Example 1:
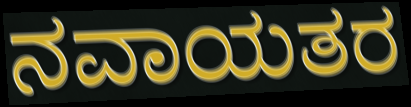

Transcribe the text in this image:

ನವಾಯತರ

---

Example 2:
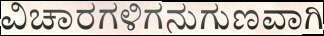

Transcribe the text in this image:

ವಿಚಾರಗಳಿಗನುಗುಣವಾಗಿ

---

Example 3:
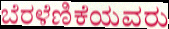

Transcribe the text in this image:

ಬೆರಳೆಣಿಕೆಯವರು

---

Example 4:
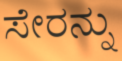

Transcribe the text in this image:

ಸೇರನ್ನು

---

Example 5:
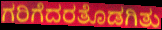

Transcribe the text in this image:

ಗರಿಗೆದರತೊಡಗಿತು